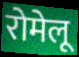
रोमेलू